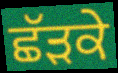
ਛੱੜਕੇ